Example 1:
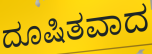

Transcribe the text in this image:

ದೂಷಿತವಾದ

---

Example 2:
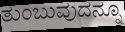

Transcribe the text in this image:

ತುಂಬುವುದನ್ನೂ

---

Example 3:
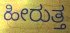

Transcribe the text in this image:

ಹೀರುತ್ತ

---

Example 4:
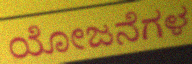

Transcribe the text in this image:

ಯೋಜನೆಗಳ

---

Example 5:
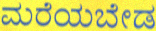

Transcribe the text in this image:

ಮರೆಯಬೇಡ